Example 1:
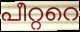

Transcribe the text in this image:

പീറ്ററെ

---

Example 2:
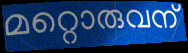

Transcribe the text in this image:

മറ്റൊരുവന്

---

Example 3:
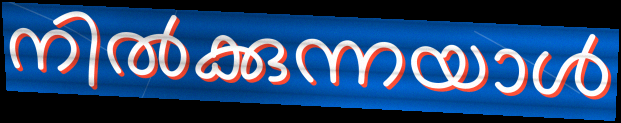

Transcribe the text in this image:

നിൽക്കുന്നയാൾ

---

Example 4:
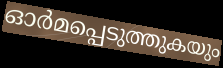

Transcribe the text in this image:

ഓർമപ്പെടുത്തുകയും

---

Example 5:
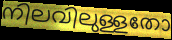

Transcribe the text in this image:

നിലവിലുള്ളതോ